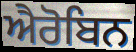
ਐਰੋਬਿਨ